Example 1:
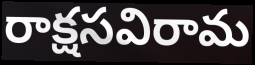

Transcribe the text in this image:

రాక్షసవిరామ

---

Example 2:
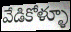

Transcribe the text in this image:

వేడికోళ్ళూ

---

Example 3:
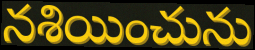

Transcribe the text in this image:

నశియించును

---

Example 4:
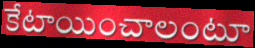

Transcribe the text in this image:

కేటాయించాలంటూ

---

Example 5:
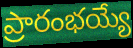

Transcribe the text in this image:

ప్రారంభయ్యే